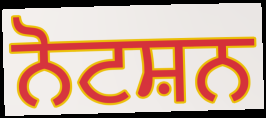
ਨੋਟਸ਼ਨ